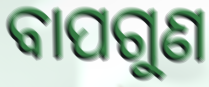
ବାପଗୁଣ